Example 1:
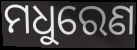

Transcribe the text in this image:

ମଧୁରେଣ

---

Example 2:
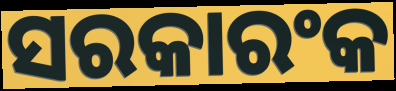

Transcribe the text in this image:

ସରକାରଂକ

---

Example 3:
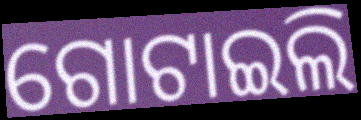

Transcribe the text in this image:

ଗୋଟାଇଲି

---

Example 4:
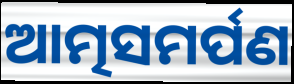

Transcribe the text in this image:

ଆତ୍ମସମର୍ପଣ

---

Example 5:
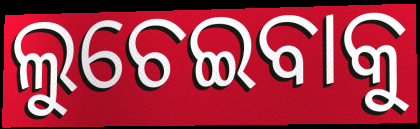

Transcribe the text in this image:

ଲୁଚେଇବାକୁ